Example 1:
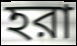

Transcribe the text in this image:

হরা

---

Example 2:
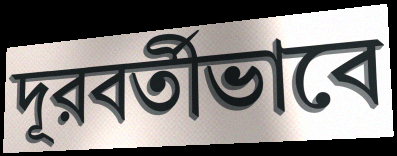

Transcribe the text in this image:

দূরবর্তীভাবে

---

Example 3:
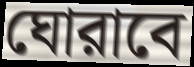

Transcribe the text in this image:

ঘোরাবে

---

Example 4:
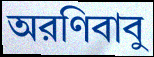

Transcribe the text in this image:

অরণিবাবু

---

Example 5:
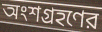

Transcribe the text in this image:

অংশগ্রহণের